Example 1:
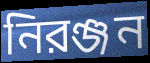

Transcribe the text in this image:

নিরঞ্জন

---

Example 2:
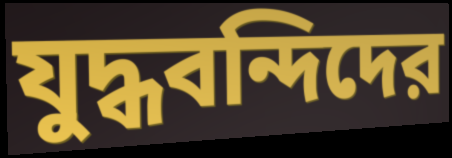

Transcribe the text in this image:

যুদ্ধবন্দিদের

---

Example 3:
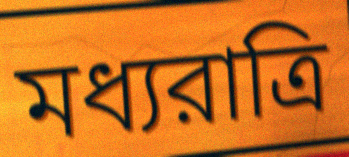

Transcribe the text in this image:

মধ্যরাত্রি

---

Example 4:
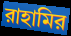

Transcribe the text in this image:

রাহামির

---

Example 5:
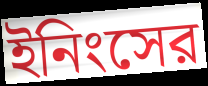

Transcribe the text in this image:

ইনিংসের